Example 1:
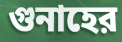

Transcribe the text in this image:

গুনাহের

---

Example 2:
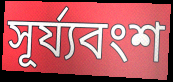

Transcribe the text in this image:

সূর্য্যবংশ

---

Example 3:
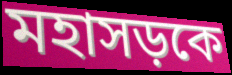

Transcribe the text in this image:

মহাসড়কে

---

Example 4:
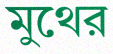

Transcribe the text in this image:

মুথের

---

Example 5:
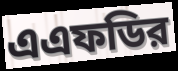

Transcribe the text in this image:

এএফডির